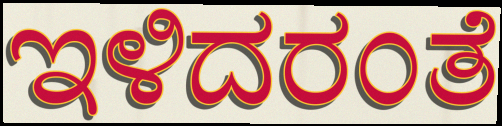
ಇಳಿದರಂತೆ